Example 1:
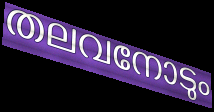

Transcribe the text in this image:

തലവനോടും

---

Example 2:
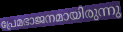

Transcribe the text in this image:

പ്രേമഭാജനമായിരുന്നു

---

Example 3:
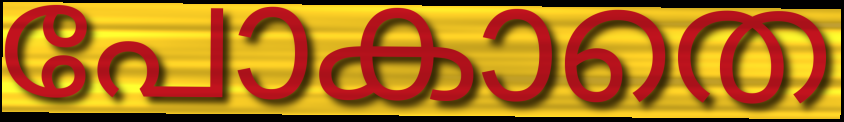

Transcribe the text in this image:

പോകാതെ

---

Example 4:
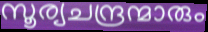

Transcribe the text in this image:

സൂര്യചന്ദ്രന്മാരും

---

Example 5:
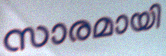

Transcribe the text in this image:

സാരമായി